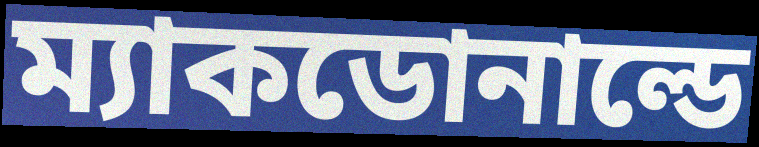
ম্যাকডোনাল্ডে